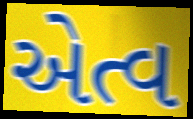
એત્વ